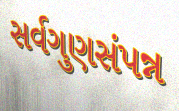
સર્વગુણસંપન્ન